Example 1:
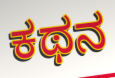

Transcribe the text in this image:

ಕಥನ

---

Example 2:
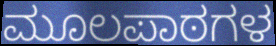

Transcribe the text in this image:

ಮೂಲಪಾಠಗಳ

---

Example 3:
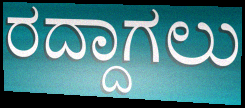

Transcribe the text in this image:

ರದ್ದಾಗಲು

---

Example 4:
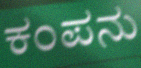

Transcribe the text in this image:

ಕಂಪನು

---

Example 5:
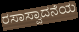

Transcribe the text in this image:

ರಸಾಸ್ವಾದನೆಯ